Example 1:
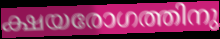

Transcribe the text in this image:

ക്ഷയരോഗത്തിനു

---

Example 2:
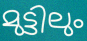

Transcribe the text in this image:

മുട്ടിലും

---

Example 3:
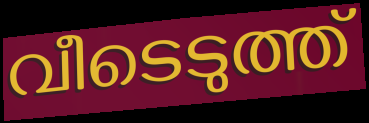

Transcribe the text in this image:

വീടെടുത്ത്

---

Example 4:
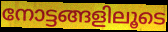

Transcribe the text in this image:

നോട്ടങ്ങളിലൂടെ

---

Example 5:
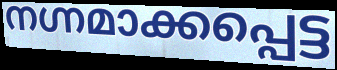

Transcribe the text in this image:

നഗ്നമാക്കപ്പെട്ട